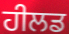
ਹੀਲਡ